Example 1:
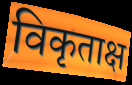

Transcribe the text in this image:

विकृताक्ष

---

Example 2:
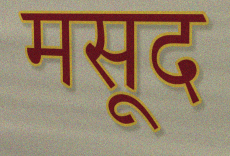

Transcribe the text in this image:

मसूद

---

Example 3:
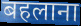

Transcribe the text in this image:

बहलाना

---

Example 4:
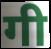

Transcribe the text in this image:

गी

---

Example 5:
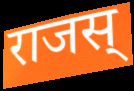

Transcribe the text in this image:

राजस्